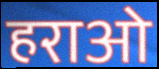
हराओ